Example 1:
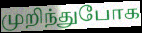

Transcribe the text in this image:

முறிந்துபோக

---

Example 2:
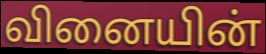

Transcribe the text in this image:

வினையின்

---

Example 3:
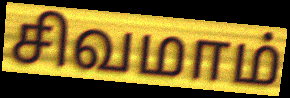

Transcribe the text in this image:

சிவமாம்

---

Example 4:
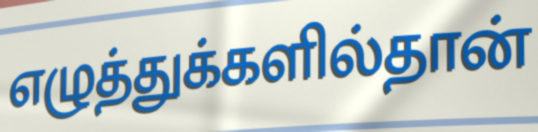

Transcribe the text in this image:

எழுத்துக்களில்தான்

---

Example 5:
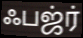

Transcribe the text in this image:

ஃபஜ்ர்